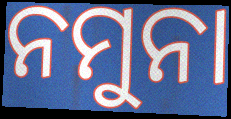
ନମୁନା